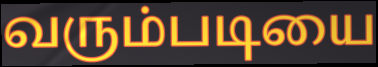
வரும்படியை